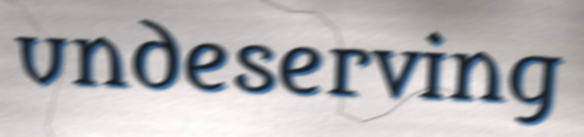
undeserving